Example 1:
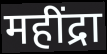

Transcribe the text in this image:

महींद्रा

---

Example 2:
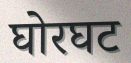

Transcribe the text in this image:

घोरघट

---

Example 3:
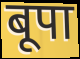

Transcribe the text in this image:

बूपा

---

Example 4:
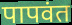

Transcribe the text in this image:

पापवंत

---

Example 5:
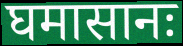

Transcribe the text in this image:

घमासानः